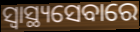
ସ୍ୱାସ୍ଥ୍ୟସେବାରେ